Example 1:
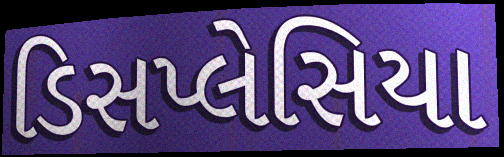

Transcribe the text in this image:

ડિસપ્લેસિયા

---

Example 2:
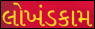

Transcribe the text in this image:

લોખંડકામ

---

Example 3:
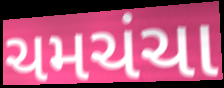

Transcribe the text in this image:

ચમચંચા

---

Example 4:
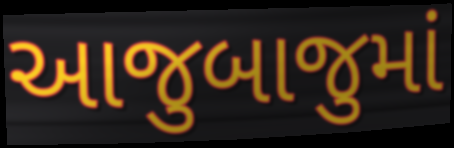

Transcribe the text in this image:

આજુબાજુમાં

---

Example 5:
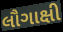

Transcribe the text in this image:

લૌગાક્ષી